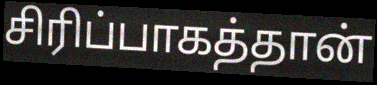
சிரிப்பாகத்தான்